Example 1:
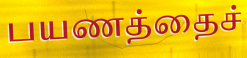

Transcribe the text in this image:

பயணத்தைச்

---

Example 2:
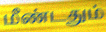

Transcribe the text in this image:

மீண்டதும்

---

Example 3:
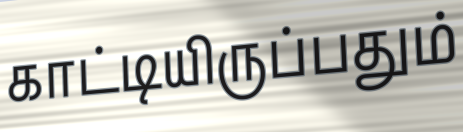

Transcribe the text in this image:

காட்டியிருப்பதும்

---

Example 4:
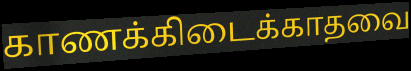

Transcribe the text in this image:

காணக்கிடைக்காதவை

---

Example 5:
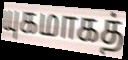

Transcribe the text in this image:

யுகமாகத்